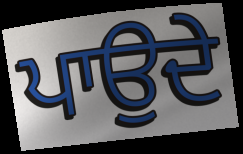
ਪਾਉਦੇ